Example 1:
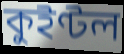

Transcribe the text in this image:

কুইণ্টল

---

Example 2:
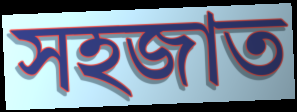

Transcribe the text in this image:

সহজাত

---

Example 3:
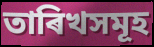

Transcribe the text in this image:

তাৰিখসমূহ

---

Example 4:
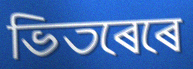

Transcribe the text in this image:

ভিতৰেৰে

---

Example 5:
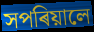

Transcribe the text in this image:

সপৰিয়ালে